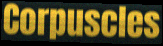
Corpuscles